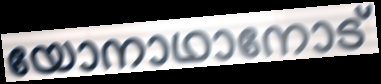
യോനാഥാനോട്